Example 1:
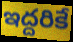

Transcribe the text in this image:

ఇద్దరికే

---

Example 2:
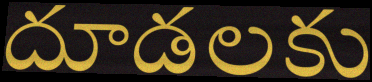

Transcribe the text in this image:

దూడలకు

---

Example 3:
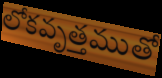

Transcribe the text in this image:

లోకవృత్తముతో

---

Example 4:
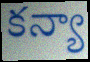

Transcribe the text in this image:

కన్యా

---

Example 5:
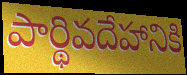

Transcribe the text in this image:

పార్థివదేహానికి